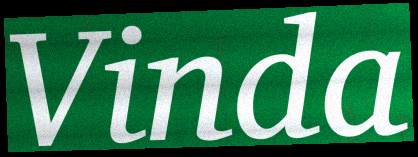
Vinda